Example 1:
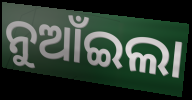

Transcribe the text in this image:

ନୁଆଁଇଲା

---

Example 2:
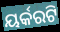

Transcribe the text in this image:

ୟର୍କରଟି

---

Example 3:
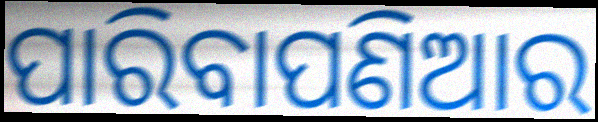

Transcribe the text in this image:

ପାରିବାପଣିଆର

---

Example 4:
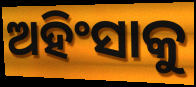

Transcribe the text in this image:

ଅହିଂସାକୁ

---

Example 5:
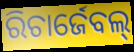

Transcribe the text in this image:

ରିଚାର୍ଜେବଲ୍